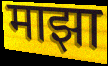
माझा